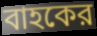
বাহকের